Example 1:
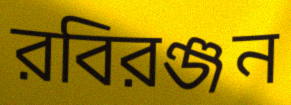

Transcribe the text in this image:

রবিরঞ্জন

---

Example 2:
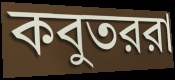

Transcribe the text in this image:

কবুতররা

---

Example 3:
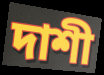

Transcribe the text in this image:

দাশী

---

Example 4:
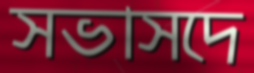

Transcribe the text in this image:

সভাসদে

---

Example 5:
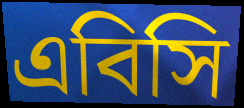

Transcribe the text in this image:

এবিসি